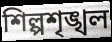
শিল্পশৃঙ্খল